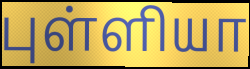
புள்ளியா